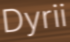
Dyrii